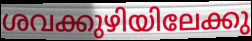
ശവക്കുഴിയിലേക്കു